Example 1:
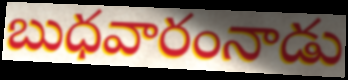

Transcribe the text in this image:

బుధవారంనాడు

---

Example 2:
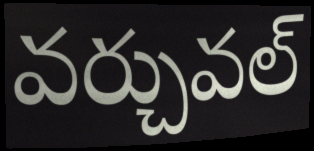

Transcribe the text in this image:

వర్చువల్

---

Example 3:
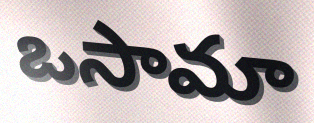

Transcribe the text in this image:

ఒసామా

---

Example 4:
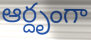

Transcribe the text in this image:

ఆర్దృంగా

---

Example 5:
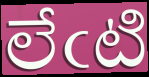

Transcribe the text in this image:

లేఁటి